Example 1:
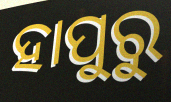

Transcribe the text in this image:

ହାପୁରୁ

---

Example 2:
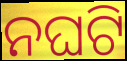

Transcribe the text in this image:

ନଘଟି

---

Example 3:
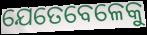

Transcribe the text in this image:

ଯେତେବେଳେକୁ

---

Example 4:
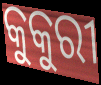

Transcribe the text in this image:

କୁକୁରୀ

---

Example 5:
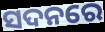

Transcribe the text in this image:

ସଦନରେ